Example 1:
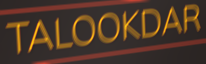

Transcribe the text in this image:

TALOOKDAR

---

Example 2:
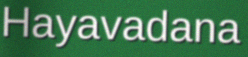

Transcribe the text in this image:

Hayavadana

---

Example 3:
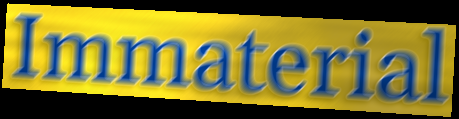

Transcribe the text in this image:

Immaterial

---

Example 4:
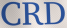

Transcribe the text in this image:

CRD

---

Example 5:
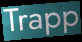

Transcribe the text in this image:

Trapp